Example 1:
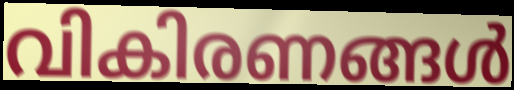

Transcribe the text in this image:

വികിരണങ്ങൾ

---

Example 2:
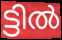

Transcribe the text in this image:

ട്ടിൽ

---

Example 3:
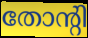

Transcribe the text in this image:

തോന്റി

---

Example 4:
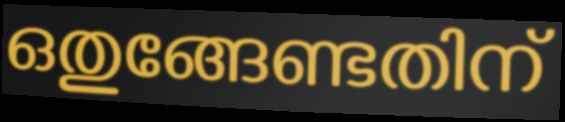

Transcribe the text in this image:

ഒതുങ്ങേണ്ടതിന്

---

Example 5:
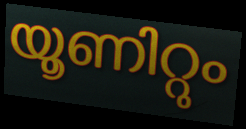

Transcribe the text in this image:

യൂണിറ്റും